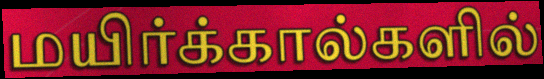
மயிர்க்கால்களில்